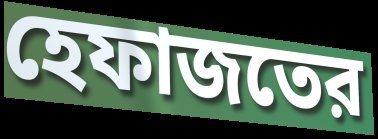
হেফাজতের